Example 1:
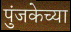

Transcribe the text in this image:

पुंजकेच्या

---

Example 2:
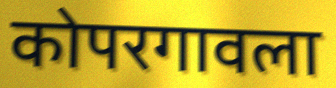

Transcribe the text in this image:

कोपरगावला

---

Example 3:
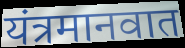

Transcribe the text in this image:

यंत्रमानवात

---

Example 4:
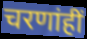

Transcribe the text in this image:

चरणांहीं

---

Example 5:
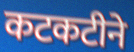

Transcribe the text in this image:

कटकटीने